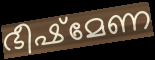
ഭീഷ്മേണ